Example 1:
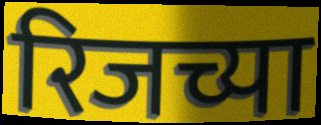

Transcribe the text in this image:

रिजच्या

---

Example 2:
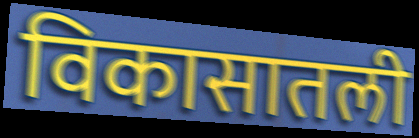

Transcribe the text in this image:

विकासातली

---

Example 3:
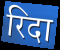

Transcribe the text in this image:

रिदा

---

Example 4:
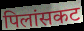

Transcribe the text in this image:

पिलांसकट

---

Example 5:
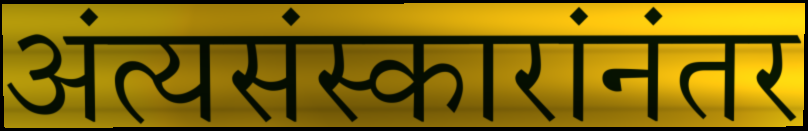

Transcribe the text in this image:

अंत्यसंस्कारांनंतर